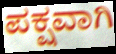
ಪಕ್ಷವಾಗಿ